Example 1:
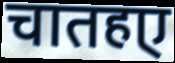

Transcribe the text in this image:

चातहए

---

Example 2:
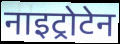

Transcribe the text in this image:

नाइट्रोटेन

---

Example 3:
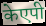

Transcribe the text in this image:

केएपी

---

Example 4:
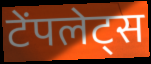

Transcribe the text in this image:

टेंपलेट्स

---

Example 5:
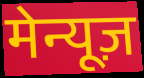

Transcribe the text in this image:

मेन्यूज़